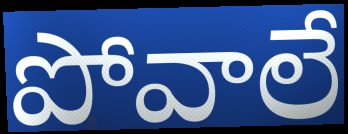
పోవాలే